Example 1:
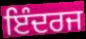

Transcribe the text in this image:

ਇੰਦਰਜ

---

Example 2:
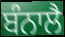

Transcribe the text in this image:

ਬੰਨਾਲੈ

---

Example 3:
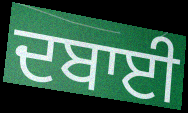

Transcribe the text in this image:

ਦਬਾਈ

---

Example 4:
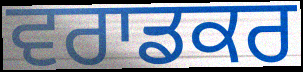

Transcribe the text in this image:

ਵਰਾਡਕਰ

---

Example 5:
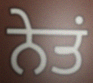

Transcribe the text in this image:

ਨੇਤਂ